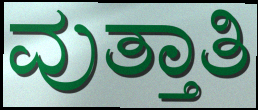
ವುತ್ತಾತಿ